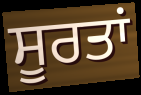
ਸੂਰਤਾਂ